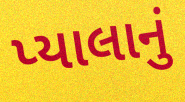
પ્યાલાનું